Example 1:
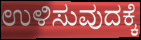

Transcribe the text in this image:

ಉಳಿಸುವುದಕ್ಕೆ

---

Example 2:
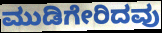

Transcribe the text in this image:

ಮುಡಿಗೇರಿದವು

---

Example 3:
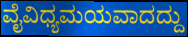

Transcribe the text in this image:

ವೈವಿಧ್ಯಮಯವಾದದ್ದು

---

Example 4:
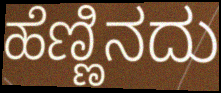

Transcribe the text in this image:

ಹೆಣ್ಣಿನದು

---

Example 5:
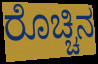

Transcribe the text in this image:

ರೊಚ್ಚಿನ